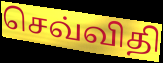
செவ்விதி